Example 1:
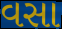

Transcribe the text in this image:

વસા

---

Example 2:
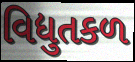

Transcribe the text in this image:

વિદ્યુતકળ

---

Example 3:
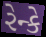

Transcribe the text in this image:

રેન્કે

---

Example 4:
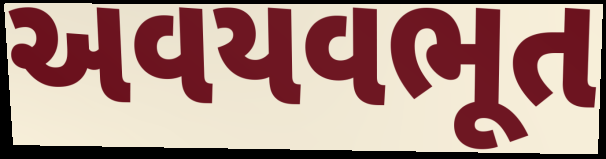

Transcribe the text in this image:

અવયવભૂત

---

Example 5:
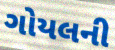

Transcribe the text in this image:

ગોયલની